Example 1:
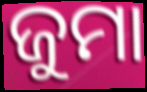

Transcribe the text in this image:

ଜୁମା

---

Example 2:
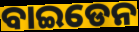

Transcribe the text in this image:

ବାଇଡେନ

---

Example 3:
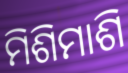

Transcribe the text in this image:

ମିଶିମାଶି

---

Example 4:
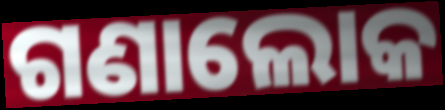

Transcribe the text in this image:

ଗଣାଲୋକ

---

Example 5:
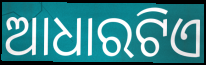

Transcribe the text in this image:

ଆଧାରଟିଏ